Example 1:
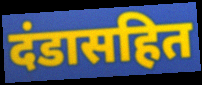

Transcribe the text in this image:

दंडासहित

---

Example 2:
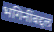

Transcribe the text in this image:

भगिनींबद्दल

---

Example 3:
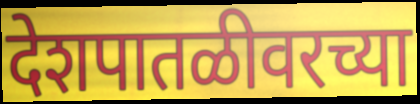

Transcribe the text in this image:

देशपातळीवरच्या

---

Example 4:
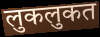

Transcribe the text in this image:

लुकलुकत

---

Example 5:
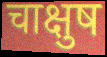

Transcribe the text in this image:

चाक्षुष